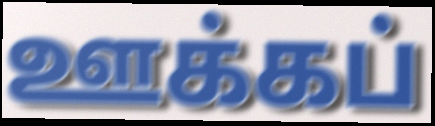
ஊக்கப்